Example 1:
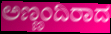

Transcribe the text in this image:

ಅಣ್ಣಂದಿರಾದ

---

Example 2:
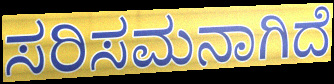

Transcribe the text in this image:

ಸರಿಸಮನಾಗಿದೆ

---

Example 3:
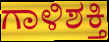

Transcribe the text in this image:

ಗಾಳಿಶಕ್ತಿ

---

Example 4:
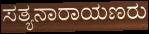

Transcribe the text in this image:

ಸತ್ಯನಾರಾಯಣರು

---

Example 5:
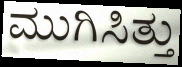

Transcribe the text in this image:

ಮುಗಿಸಿತ್ತು